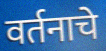
वर्तनाचे